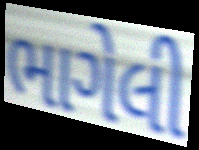
ભાગેલી